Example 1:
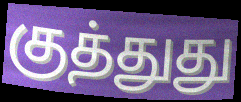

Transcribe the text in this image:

குத்துது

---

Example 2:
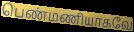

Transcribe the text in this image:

பெண்மணியாகவே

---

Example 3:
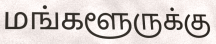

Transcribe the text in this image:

மங்களூருக்கு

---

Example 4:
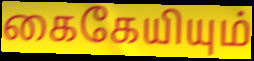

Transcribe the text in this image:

கைகேயியும்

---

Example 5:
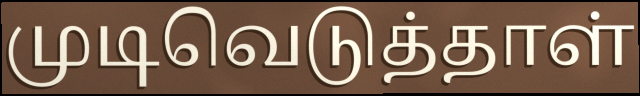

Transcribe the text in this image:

முடிவெடுத்தாள்